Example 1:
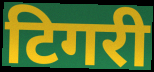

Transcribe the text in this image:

टिगरी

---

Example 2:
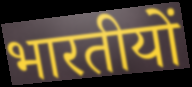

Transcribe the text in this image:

भारतीयों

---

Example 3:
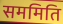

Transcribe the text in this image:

सममिति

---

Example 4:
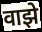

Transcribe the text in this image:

वाझे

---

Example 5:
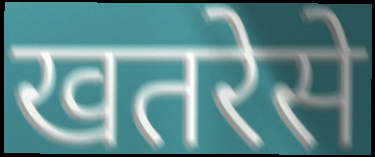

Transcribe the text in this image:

खतरेसे